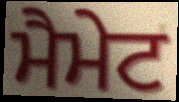
ਮੈਮੇਟ